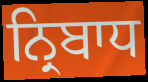
ਨ੍ਰਿਬਾਧ